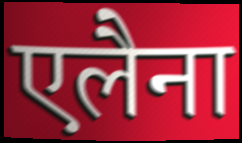
एलैना